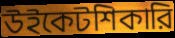
উইকেটশিকারি